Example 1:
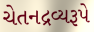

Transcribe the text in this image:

ચેતનદ્રવ્યરૂપે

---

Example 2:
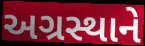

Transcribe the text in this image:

અગ્રસ્થાને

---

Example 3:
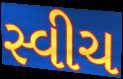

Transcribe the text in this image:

સ્વીચ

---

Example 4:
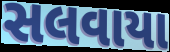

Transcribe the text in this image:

સલવાયા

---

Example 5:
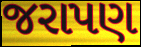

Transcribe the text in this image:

જરાપણ